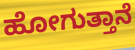
ಹೋಗುತ್ತಾನೆ